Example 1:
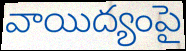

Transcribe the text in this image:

వాయిద్యంపై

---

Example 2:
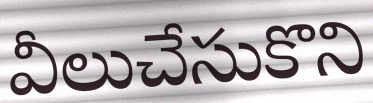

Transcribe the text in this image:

వీలుచేసుకొని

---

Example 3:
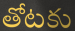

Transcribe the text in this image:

తోటకు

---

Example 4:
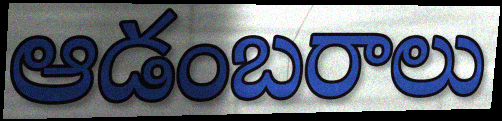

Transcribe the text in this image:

ఆడంబరాలు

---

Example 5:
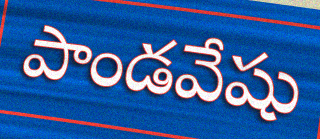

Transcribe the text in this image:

పాండవేషు